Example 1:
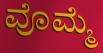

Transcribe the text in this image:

ವೊಮ್ಮೆ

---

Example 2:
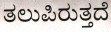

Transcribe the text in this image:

ತಲುಪಿರುತ್ತದೆ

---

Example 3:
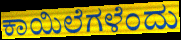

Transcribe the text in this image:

ಕಾಯಿಲೆಗಳೆಂದು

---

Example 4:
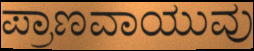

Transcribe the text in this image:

ಪ್ರಾಣವಾಯುವು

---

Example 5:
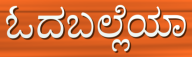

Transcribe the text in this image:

ಓದಬಲ್ಲೆಯಾ